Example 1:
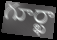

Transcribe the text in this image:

గూర్ఖా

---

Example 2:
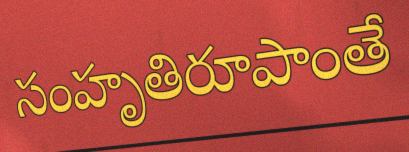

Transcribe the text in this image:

సంహృతిరూపాంతే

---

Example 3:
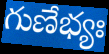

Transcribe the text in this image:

గుణేభ్యః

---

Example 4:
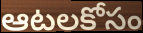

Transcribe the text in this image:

ఆటలకోసం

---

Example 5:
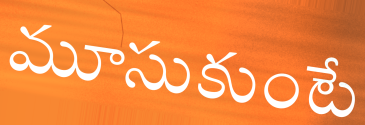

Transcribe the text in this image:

మూసుకుంటే